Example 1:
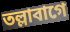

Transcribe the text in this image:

তল্লাবাগে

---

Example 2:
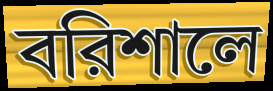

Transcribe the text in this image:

বরিশালে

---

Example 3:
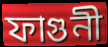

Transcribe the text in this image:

ফাগুনী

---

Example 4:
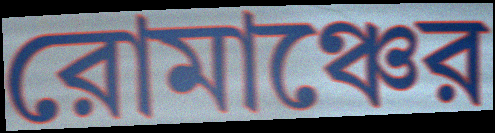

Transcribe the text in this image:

রোমাঞ্চের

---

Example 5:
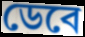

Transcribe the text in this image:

ডেবে